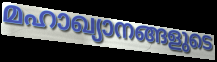
മഹാഖ്യാനങ്ങളുടെ